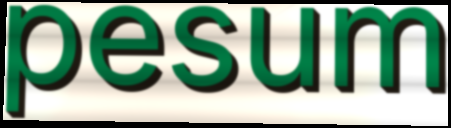
pesum